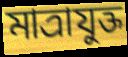
মাত্রাযুক্ত